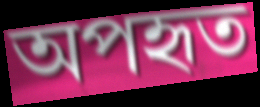
অপহৃত